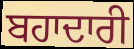
ਬਹਾਦਾਰੀ